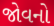
જોવનો